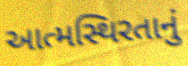
આત્મસ્થિરતાનું